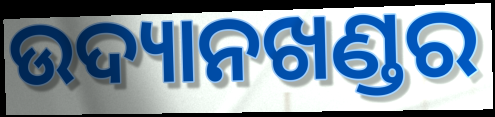
ଉଦ୍ୟାନଖଣ୍ଡର